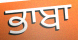
ਭਾਬਾ